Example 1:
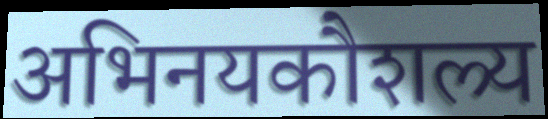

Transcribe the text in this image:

अभिनयकौशल्य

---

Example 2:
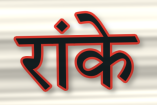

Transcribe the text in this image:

रांके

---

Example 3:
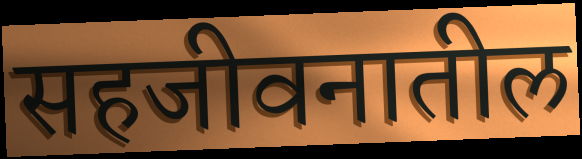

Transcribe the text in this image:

सहजीवनातील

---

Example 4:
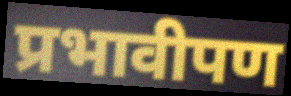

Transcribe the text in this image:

प्रभावीपण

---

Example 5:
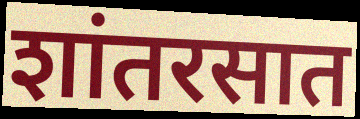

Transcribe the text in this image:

शांतरसात